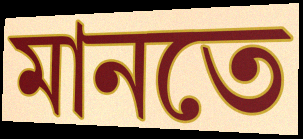
মানতে